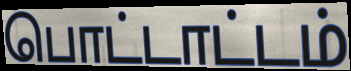
பொட்டாட்டம்